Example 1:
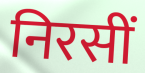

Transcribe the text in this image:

निरसीं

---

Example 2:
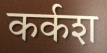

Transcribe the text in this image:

कर्कश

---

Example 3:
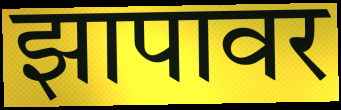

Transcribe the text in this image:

झापावर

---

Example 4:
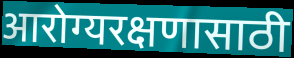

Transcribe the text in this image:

आरोग्यरक्षणासाठी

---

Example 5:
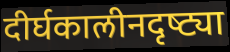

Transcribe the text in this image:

दीर्घकालीनदृष्ट्या